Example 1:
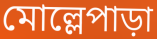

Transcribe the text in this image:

মোল্লেপাড়া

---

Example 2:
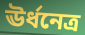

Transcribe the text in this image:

ঊর্ধনেত্র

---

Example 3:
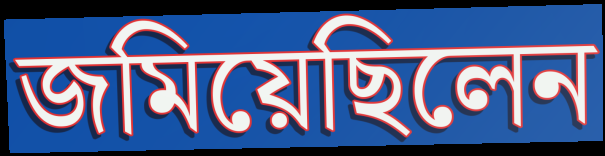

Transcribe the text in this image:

জমিয়েছিলেন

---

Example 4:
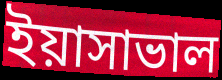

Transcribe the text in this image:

ইয়াসাভাল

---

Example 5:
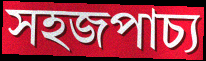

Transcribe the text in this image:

সহজপাচ্য